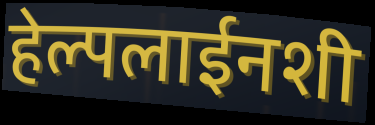
हेल्पलाईनशी